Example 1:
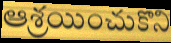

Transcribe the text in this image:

ఆశ్రయించుకొని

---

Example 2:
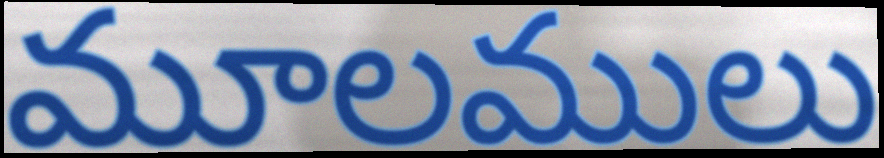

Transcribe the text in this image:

మూలములు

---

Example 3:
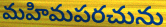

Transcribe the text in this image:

మహిమపరచును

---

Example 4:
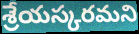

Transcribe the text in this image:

శ్రేయస్కరమని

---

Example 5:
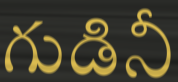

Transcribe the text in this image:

గుడినీ